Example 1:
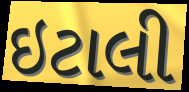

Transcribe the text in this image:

ઇટાલી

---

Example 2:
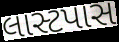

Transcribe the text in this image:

લાસ્ટપાસ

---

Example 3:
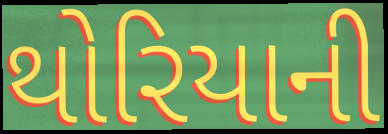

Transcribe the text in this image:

થોરિયાની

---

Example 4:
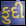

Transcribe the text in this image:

ફુદી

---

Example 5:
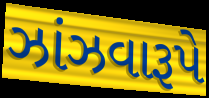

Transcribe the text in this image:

ઝાંઝવારૂપે